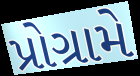
પ્રોગ્રામે